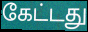
கேட்டது